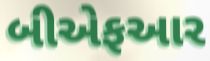
બીએફઆર